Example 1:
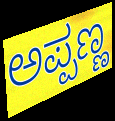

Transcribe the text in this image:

ಅಪ್ಪಣ್ಣ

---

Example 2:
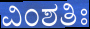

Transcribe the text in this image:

ವಿಂಶತಿಃ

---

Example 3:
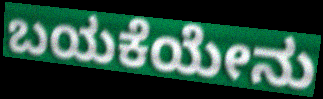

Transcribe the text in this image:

ಬಯಕೆಯೇನು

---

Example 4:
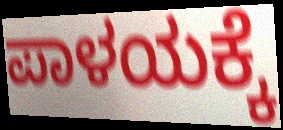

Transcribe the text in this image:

ಪಾಳಯಕ್ಕೆ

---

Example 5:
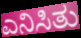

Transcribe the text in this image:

ಎನಿಸಿತು